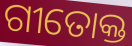
ଗୀତୋକ୍ତ